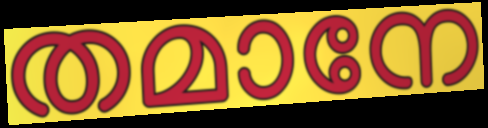
തമാനേ